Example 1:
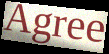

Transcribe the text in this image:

Agree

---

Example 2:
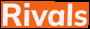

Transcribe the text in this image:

Rivals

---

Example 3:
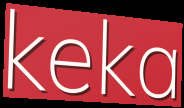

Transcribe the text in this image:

keka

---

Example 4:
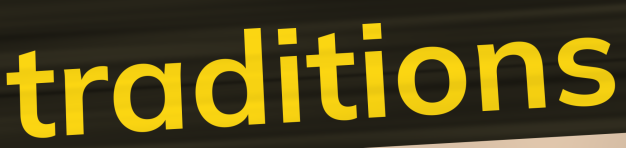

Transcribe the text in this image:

traditions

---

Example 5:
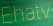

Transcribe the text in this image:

Ehatv